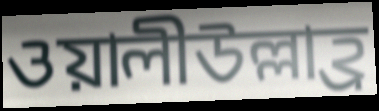
ওয়ালীউল্লাহ্র